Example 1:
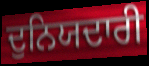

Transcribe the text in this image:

ਦੁਨਿਯਦਾਰੀ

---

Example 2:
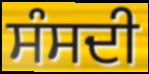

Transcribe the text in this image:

ਸੰਸਦੀ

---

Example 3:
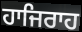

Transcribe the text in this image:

ਹਾਜਿਰਾਹ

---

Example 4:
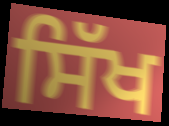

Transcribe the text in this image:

ਸਿੱਖ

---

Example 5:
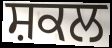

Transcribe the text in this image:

ਸ਼ਕਲ